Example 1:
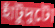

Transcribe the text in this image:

হাঁটুদুটো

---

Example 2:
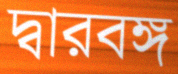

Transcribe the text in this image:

দ্বারবঙ্গ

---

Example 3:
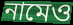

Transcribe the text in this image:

নামেও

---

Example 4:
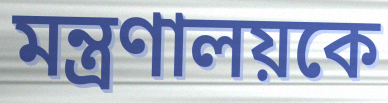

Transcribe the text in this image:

মন্ত্রণালয়কে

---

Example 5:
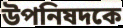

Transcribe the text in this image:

উপনিষদকে